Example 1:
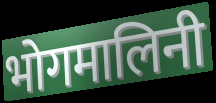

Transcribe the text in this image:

भोगमालिनी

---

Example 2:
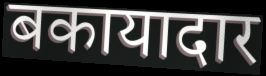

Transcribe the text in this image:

बकायादार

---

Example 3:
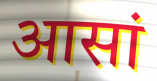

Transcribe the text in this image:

आसां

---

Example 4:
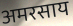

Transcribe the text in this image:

अमरसाय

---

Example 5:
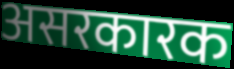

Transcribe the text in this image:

असरकारक